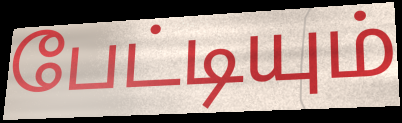
பேட்டியும்